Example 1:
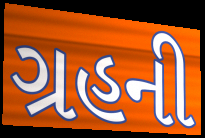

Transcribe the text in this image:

ગ્રહની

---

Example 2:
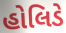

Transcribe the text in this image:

હોલિડે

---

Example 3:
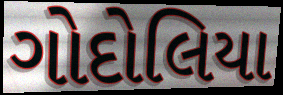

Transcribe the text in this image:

ગોદોલિયા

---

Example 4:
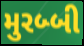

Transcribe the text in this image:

મુરબ્બી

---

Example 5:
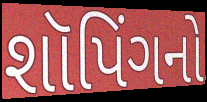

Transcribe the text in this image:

શૉપિંગનો